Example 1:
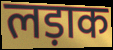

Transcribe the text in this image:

लड़ाक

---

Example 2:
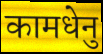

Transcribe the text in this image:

कामधेनु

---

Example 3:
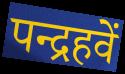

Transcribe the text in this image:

पन्द्रहवें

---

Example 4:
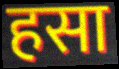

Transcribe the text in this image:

हसा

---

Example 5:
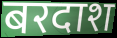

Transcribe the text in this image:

बरदाश